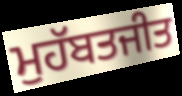
ਮੁਹੱਬਤਜੀਤ